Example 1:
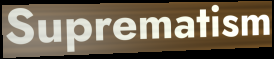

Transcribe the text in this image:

Suprematism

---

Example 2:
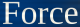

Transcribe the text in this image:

Force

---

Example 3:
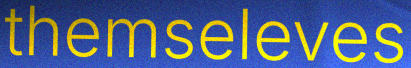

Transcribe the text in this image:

themseleves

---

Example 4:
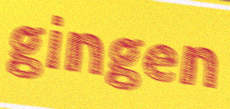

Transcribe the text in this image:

gingen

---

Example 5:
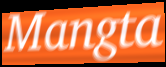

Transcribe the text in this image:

Mangta